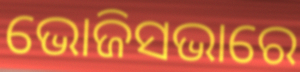
ଭୋଜିସଭାରେ